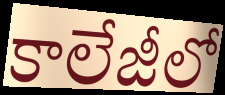
కాలేజీలో